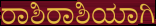
ರಾಶಿರಾಶಿಯಾಗಿ